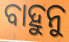
ବାହୁନୁ